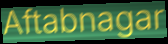
Aftabnagar